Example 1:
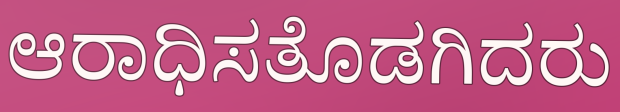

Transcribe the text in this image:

ಆರಾಧಿಸತೊಡಗಿದರು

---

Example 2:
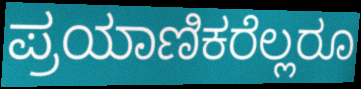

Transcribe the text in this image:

ಪ್ರಯಾಣಿಕರೆಲ್ಲರೂ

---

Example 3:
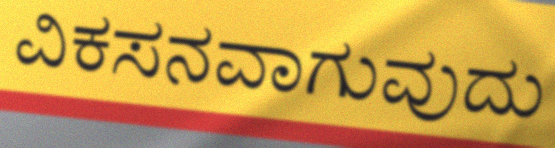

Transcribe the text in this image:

ವಿಕಸನವಾಗುವುದು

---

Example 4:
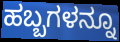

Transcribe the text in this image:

ಹಬ್ಬಗಳನ್ನೂ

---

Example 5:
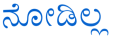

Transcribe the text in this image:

ನೋಡಿಲ್ಲ